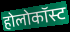
होलोकॉस्ट